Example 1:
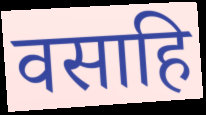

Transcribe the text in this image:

वसाहि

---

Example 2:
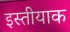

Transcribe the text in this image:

इस्तीयाक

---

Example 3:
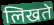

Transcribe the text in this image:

लिखते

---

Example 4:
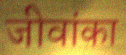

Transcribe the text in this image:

जीवांका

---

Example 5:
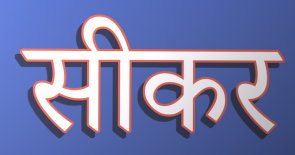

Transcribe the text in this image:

सीकर